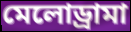
মেলোড্রামা